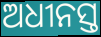
ଅଧୀନସ୍ତ